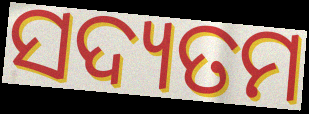
ସଦ୍ୟତମ